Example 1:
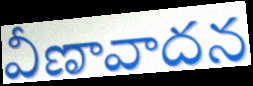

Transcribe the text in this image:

వీణావాదన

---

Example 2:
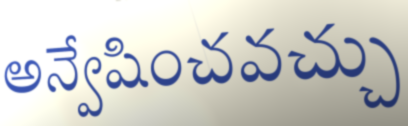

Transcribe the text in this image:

అన్వేషించవచ్చు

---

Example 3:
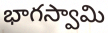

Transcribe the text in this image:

భాగస్వామి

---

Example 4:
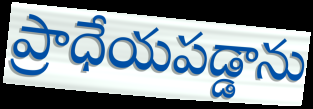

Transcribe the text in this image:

ప్రాధేయపడ్డాను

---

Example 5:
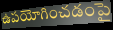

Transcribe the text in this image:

ఉపయోగించడంపై